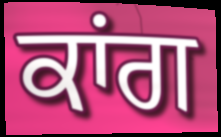
ਕਾਂਗ